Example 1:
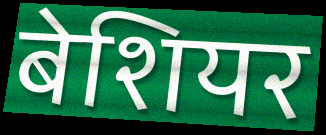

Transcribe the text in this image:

बेशियर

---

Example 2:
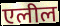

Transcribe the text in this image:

एलील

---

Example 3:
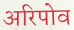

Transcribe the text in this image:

अरिपोव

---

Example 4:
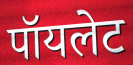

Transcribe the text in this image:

पॉयलेट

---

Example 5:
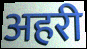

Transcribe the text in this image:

अहरी